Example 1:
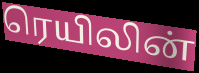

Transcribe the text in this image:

ரெயிலின்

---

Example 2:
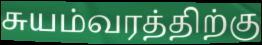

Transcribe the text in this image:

சுயம்வரத்திற்கு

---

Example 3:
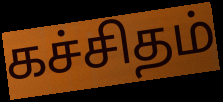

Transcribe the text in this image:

கச்சிதம்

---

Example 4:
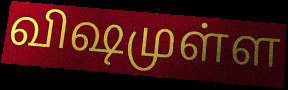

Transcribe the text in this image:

விஷமுள்ள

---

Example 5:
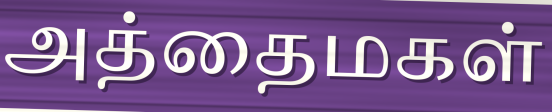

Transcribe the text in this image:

அத்தைமகள்